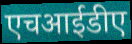
एचआईडीए